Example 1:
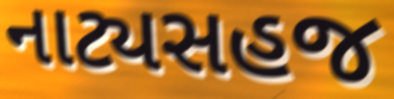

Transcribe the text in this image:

નાટ્યસહજ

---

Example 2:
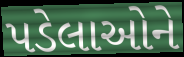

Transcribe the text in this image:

પડેલાઓને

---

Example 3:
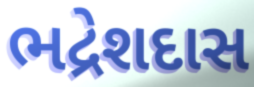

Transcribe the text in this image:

ભદ્રેશદાસ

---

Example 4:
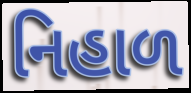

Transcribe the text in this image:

નિહાળ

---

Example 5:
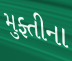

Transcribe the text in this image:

મુફ્તીના